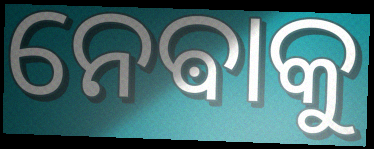
ନେଵାକୁ